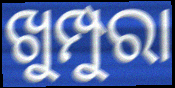
ଖୁମ୍ପୁରା